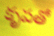
కృపతో